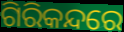
ଗିରିକନ୍ଦରେ